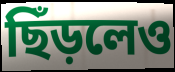
ছিঁড়লেও